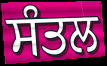
ਸੰਤਲ